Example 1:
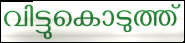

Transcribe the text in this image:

വിട്ടുകൊടുത്ത്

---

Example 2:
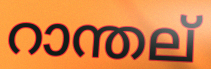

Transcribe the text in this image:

റാന്തല്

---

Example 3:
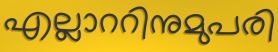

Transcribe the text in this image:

എല്ലാററിനുമുപരി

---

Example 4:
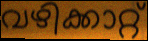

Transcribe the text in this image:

വഴിക്കാറ്റ്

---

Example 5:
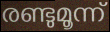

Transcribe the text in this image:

രണ്ടുമൂന്ന്